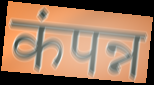
कंपन्न